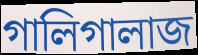
গালিগালাজ